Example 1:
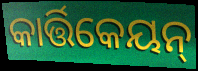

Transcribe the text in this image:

କାର୍ତ୍ତିକେୟନ୍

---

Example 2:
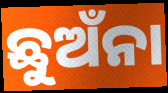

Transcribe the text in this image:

ଛୁଅଁନା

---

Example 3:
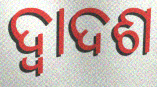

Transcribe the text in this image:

ଦ୍ବାଦଶ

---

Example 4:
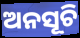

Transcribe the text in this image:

ଅନସୂଚି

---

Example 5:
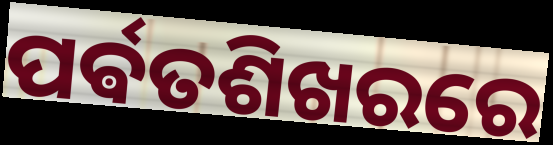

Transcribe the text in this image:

ପର୍ଵତଶିଖରରେ